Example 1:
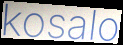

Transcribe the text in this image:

kosalo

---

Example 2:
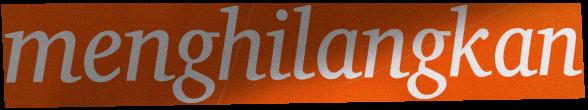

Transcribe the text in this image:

menghilangkan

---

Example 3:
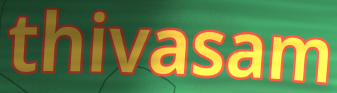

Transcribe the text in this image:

thivasam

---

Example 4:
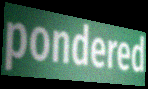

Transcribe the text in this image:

pondered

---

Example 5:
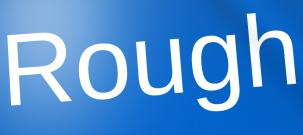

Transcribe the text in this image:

Rough